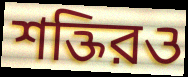
শক্তিরও